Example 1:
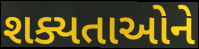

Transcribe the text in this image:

શક્યતાઓને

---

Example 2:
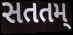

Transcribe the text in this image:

સતતમ્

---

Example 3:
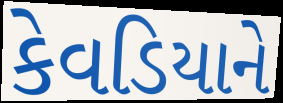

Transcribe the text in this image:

કેવડિયાને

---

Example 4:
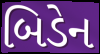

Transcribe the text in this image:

બિડેન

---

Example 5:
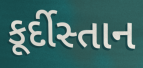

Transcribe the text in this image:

કૂર્દીસ્તાન